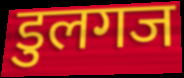
डुलगज